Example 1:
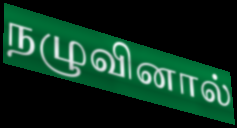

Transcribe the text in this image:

நழுவினால்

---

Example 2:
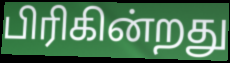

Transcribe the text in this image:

பிரிகின்றது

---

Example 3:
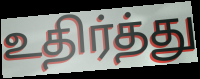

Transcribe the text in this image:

உதிர்த்து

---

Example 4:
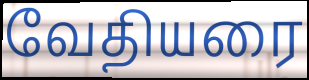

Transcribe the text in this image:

வேதியரை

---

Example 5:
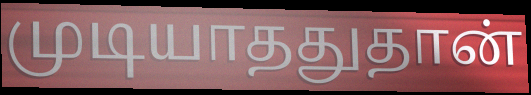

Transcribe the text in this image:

முடியாததுதான்